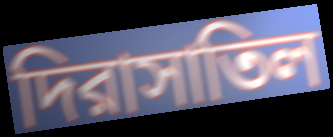
দিরাসাতিল